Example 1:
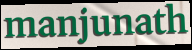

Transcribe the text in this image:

manjunath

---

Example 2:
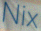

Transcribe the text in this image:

Nix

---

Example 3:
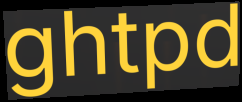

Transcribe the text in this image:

ghtpd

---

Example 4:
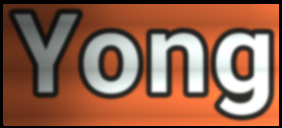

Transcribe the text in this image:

Yong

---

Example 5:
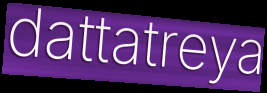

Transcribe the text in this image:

dattatreya